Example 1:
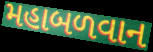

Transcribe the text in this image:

મહાબળવાન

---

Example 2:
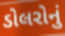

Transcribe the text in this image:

ડોલરોનું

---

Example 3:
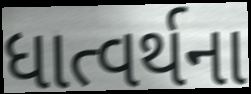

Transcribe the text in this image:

ધાત્વર્થના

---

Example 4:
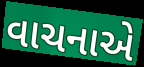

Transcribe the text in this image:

વાચનાએ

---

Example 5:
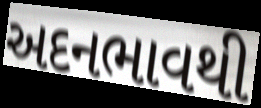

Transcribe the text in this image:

અદનભાવથી